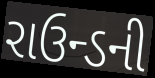
રાઉન્ડની